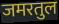
जमरतुल